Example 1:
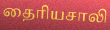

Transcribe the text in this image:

தைரியசாலி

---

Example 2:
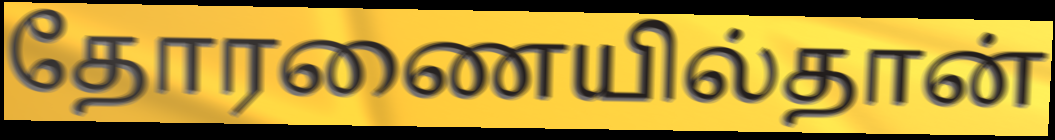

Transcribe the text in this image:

தோரணையில்தான்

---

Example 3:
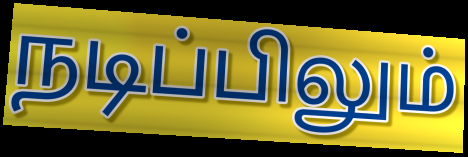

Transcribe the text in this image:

நடிப்பிலும்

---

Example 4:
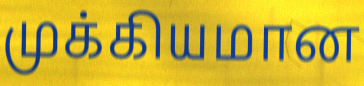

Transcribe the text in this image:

முக்கியமான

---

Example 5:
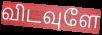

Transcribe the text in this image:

விடவுளே